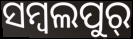
ସମ୍ବଲପୁର୍